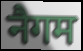
नैगम